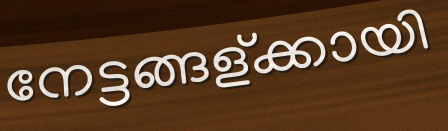
നേട്ടങ്ങള്ക്കായി